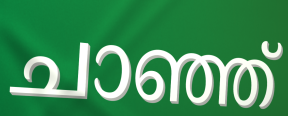
ചാഞ്ഞ്